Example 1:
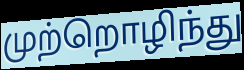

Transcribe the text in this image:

முற்றொழிந்து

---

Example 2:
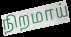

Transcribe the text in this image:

நிறமாய்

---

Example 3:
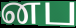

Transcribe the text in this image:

னப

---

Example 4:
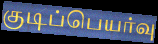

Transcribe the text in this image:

குடிப்பெயர்வு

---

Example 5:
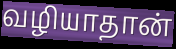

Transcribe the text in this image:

வழியாதான்